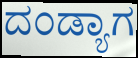
ದಂಡ್ಯಾಗ